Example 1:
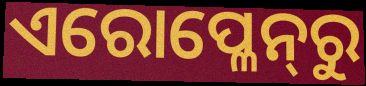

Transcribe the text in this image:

ଏରୋପ୍ଳେନ୍‍ରୁ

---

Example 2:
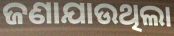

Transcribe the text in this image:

ଜଣାଯାଉଥିଲା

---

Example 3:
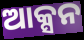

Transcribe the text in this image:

ଆକ୍ସନ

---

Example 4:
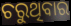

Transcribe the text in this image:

ଚରୁଥିବାର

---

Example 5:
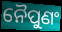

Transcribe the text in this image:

ନୈପୁଣଂ